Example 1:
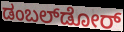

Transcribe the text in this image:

ಡಂಬಲ್‌ಡೋರ್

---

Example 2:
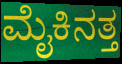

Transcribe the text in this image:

ಮೈಕಿನತ್ತ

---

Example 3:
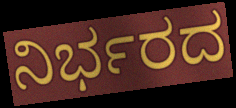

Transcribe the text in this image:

ನಿರ್ಭರದ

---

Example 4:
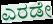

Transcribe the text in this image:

ಎರಡೇ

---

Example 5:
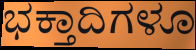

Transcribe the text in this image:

ಭಕ್ತಾದಿಗಳೂ